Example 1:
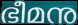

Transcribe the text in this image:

ഭീമനു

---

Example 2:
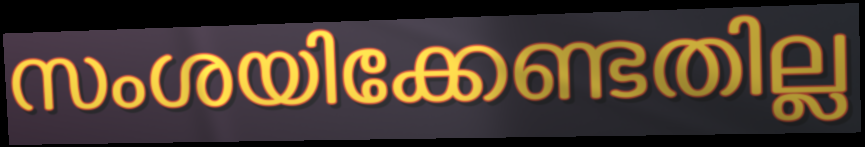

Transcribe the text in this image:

സംശയിക്കേണ്ടതില്ല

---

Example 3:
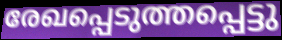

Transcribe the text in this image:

രേഖപ്പെടുത്തപ്പെട്ടു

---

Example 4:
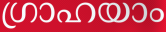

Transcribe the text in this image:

ഗ്രാഹയാം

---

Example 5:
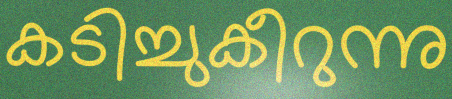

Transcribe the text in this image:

കടിച്ചുകീറുന്നു